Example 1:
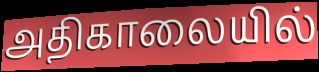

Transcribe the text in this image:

அதிகாலையில்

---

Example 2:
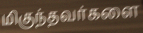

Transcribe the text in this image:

மிகுந்தவர்களை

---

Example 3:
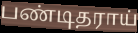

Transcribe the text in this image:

பண்டிதராய்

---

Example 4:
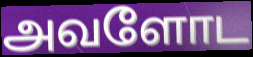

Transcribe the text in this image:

அவளோட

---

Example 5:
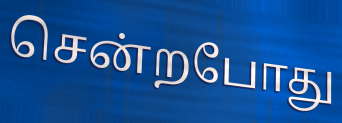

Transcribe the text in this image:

சென்றபோது